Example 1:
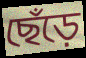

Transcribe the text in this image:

ছেঁড়ে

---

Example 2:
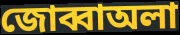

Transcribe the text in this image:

জোব্বাঅলা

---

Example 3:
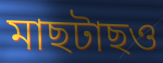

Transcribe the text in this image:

মাছটাছও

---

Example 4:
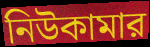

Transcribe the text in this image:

নিউকামার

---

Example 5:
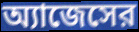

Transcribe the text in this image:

অ্যাজেসের